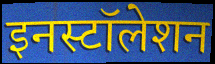
इनस्टॉलेशन